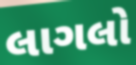
લાગલો